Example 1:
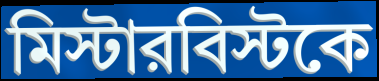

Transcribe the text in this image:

মিস্টারবিস্টকে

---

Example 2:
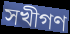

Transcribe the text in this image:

সখীগণ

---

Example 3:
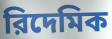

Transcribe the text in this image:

রিদেমিক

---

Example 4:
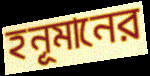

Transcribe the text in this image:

হনূমানের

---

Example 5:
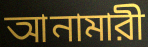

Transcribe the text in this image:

আনামারী